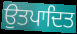
ਉਤਪਾਦਿਤ